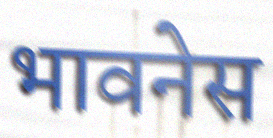
भावनेस